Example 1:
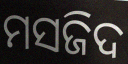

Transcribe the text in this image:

ମସଜିଦ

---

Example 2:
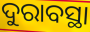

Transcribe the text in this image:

ଦୁରାବସ୍ଥା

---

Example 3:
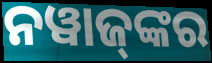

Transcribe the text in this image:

ନୱାଜ୍‍ଙ୍କର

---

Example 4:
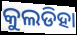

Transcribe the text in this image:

କୁଲଡିହା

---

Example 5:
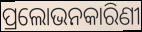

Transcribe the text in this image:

ପ୍ରଲୋଭନକାରିଣୀ